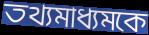
তথ্যমাধ্যমকে